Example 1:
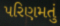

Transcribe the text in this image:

પરિણમતું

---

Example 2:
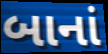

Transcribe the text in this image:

બાનાં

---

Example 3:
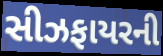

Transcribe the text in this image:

સીઝફાયરની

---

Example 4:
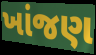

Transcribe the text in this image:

ખાંજણ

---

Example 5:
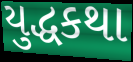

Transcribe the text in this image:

યુદ્ધકથા